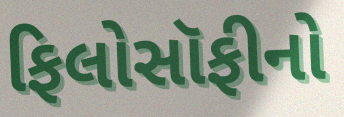
ફિલોસૉફીનો